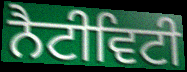
ਨੈਟੀਵਿਟੀ